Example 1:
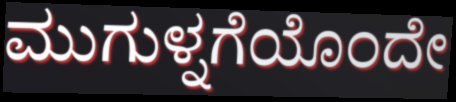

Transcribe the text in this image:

ಮುಗುಳ್ನಗೆಯೊಂದೇ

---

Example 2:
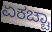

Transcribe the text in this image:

ಏಕಚ್ಚಾ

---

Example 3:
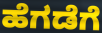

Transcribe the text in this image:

ಹೆಗಡೆಗೆ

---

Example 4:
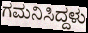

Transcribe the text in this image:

ಗಮನಿಸಿದ್ದಳು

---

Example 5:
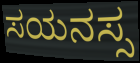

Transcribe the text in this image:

ಸಯನಸ್ಸ